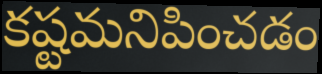
కష్టమనిపించడం